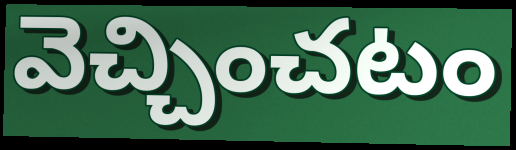
వెచ్చించటం